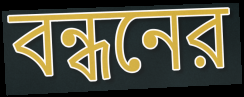
বন্ধনের